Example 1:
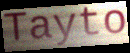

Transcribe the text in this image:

Tayto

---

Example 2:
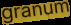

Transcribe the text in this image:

granum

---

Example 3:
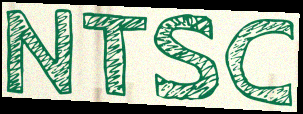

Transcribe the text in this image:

NTSC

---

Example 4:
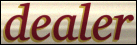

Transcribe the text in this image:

dealer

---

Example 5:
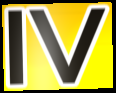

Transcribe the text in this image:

IV